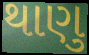
થાણુ